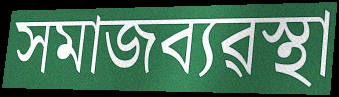
সমাজব্যৱস্থা